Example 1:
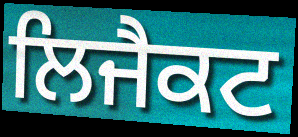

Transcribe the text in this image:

ਲਿਜੈਕਟ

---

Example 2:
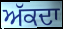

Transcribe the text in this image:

ਅੱਕਦਾ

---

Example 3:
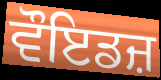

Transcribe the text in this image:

ਵੌਇਡਜ਼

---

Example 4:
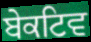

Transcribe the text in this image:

ਬੇਕਟਿਵ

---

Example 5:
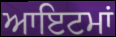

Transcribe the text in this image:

ਆਇਟਮਾਂ